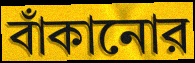
বাঁকানোর